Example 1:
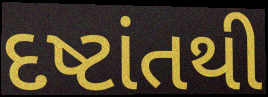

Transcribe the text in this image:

દષ્ટાંતથી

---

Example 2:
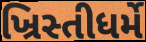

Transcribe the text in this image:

ખ્રિસ્તીધર્મે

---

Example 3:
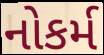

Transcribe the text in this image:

નોકર્મ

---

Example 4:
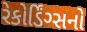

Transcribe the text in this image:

રેકોર્ડિંગ્સનો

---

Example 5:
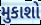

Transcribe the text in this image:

મુકાશો